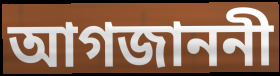
আগজাননী